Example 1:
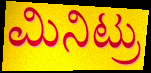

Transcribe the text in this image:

ಮಿನಿಟ್ರು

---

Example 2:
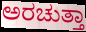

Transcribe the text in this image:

ಅರಚುತ್ತಾ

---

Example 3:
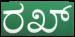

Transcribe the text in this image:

ರಖ್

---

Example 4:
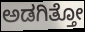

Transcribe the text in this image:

ಅಡಗಿತ್ತೋ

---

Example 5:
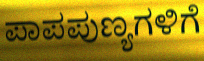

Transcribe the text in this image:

ಪಾಪಪುಣ್ಯಗಳಿಗೆ